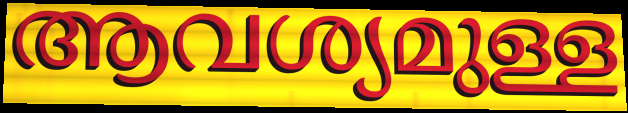
ആവശ്യമുള്ള